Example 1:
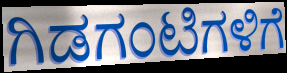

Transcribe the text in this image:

ಗಿಡಗಂಟಿಗಳಿಗೆ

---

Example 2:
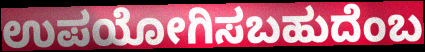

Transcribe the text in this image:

ಉಪಯೋಗಿಸಬಹುದೆಂಬ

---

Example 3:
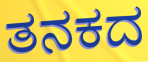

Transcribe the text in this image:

ತನಕದ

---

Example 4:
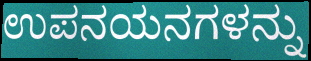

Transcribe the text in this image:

ಉಪನಯನಗಳನ್ನು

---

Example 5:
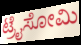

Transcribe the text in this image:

ಟ್ರೈಸೋಮಿ